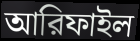
আরিফাইল